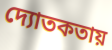
দ্যোতকতায়